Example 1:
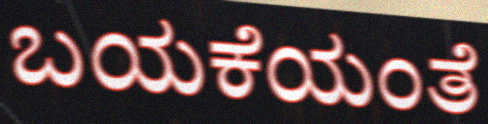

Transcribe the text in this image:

ಬಯಕೆಯಂತೆ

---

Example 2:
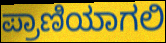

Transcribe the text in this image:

ಪ್ರಾಣಿಯಾಗಲಿ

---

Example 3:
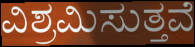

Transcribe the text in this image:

ವಿಶ್ರಮಿಸುತ್ತವೆ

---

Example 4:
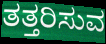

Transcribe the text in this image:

ತತ್ತರಿಸುವ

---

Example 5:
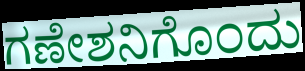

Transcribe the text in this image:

ಗಣೇಶನಿಗೊಂದು